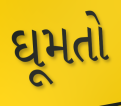
ઘૂમતો